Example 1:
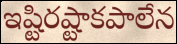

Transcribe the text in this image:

ఇష్టిరష్టాకపాలేన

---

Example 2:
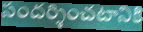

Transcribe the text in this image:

సందర్శించటానికి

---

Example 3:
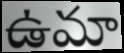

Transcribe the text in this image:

ఉమా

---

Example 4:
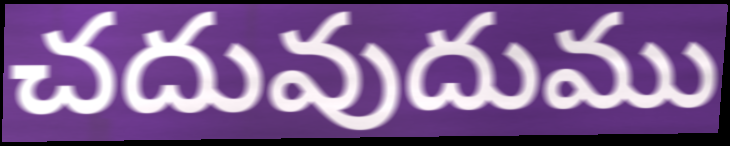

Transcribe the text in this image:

చదువుదుము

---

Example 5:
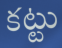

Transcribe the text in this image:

కట్టు